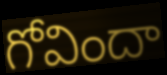
గోవిందా